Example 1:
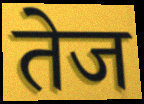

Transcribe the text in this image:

तेज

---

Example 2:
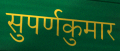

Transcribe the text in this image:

सुपर्णकुमार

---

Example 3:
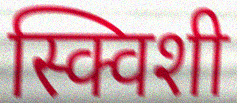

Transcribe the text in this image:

स्क्विशी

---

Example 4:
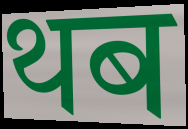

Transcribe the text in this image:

थब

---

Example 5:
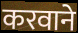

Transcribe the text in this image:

करवाने